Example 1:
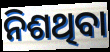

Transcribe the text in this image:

ନିଶଥିବା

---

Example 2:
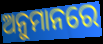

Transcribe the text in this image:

ଅନୁମାନରେ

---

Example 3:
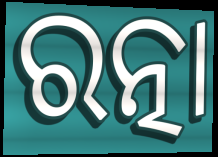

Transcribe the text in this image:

ରତ୍ନା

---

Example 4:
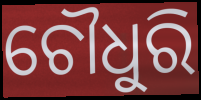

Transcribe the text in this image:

ଚୌଧୁରି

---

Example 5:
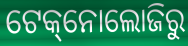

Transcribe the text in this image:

ଟେକ୍‌ନୋଲୋଜିରୁ